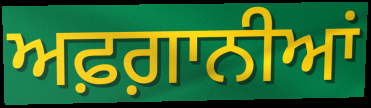
ਅਫ਼ਗ਼ਾਨੀਆਂ